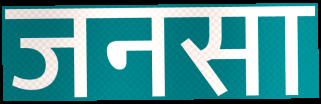
जनसा